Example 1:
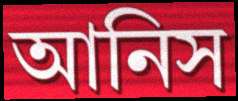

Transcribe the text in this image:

আনিস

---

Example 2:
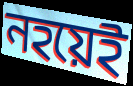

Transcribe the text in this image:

নহয়েই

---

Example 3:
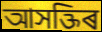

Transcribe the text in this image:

আসক্তিৰ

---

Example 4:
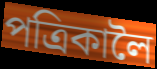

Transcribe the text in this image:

পত্ৰিকালৈ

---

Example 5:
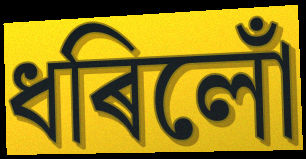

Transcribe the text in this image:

ধৰিলোঁ